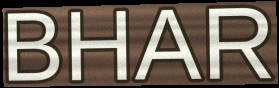
BHAR